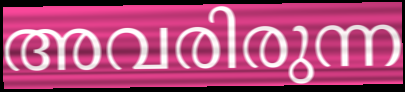
അവരിരുന്ന